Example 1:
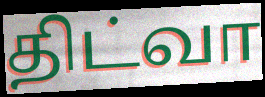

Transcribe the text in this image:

திட்வா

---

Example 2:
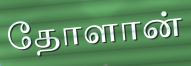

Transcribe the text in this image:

தோளான்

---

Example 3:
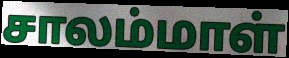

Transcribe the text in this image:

சாலம்மாள்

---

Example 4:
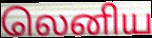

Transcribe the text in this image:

லெனிய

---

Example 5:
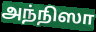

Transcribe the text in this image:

அந்நிஸா